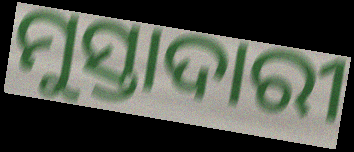
ମୁସ୍ତାଦାରୀ